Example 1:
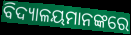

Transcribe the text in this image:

ବିଦ୍ୟାଳୟମାନଙ୍କରେ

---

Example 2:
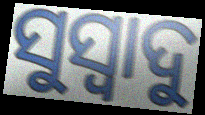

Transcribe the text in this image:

ସୁସ୍ୱାଦୁ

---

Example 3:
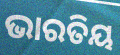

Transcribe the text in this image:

ଭାରତିୟ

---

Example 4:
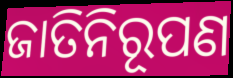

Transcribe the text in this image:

ଜାତିନିରୂପଣ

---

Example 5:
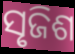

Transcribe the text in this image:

ସୃଜିଶ